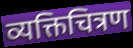
व्यक्तिचित्रण